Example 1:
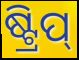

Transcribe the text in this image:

ଷ୍ଟ୍ରିପ୍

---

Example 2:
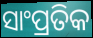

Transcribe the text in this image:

ସାଂପ୍ରତିକ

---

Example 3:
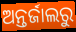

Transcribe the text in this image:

ଅନ୍ତର୍ଜାଲରୁ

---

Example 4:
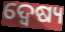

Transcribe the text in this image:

ଦ୍ୱେଷ୍ୟ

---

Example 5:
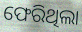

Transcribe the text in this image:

ଫେରିଥିଲା